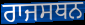
ਰਾਜਸਥਨ